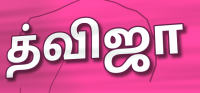
த்விஜா